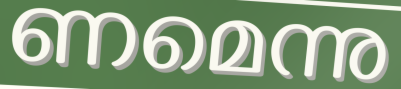
ണമെന്നു